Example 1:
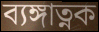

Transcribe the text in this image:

ব্যঙ্গাত্নক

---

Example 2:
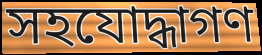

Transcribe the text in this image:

সহযোদ্ধাগণ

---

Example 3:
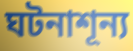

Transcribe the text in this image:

ঘটনাশূন্য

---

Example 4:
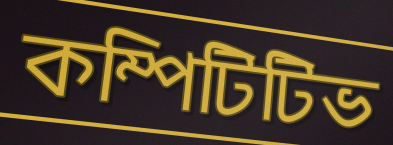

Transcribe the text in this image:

কম্পিটিটিভ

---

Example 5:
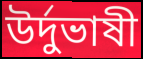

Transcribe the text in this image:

উর্দুভাষী